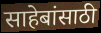
साहेबांसाठी